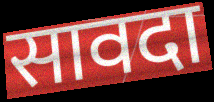
सावदा